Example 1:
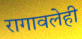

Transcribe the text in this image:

रागावलेही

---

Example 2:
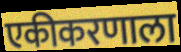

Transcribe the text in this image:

एकीकरणाला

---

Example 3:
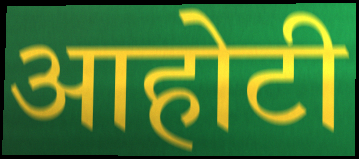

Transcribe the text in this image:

आहोटी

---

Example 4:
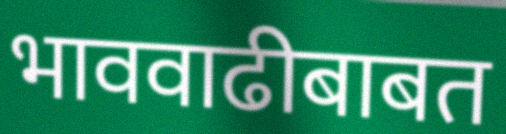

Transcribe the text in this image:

भाववाढीबाबत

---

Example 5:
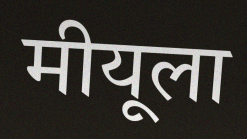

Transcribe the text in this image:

मीयूला